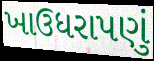
ખાઉધરાપણું